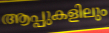
ആപ്പുകളിലും